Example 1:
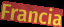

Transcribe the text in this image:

Francia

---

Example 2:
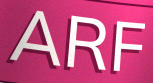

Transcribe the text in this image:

ARF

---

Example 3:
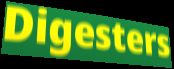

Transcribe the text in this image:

Digesters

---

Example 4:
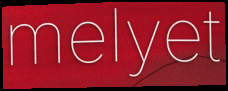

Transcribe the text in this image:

melyet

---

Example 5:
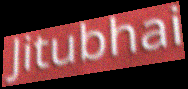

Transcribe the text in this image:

Jitubhai